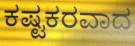
ಕಷ್ಟಕರವಾದ